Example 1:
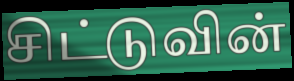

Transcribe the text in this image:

சிட்டுவின்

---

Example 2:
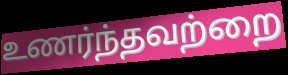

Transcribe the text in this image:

உணர்ந்தவற்றை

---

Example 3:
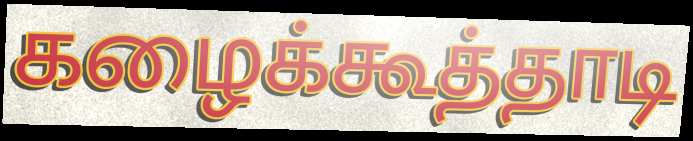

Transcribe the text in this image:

கழைக்கூத்தாடி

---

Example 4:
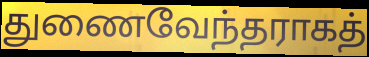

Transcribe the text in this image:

துணைவேந்தராகத்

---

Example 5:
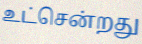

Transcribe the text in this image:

உட்சென்றது